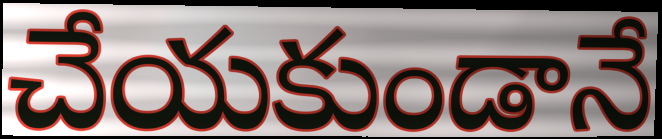
చేయకుండానే